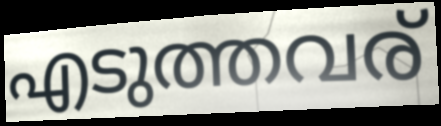
എടുത്തവര്